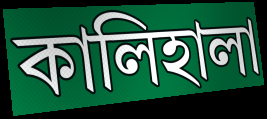
কালিহালা